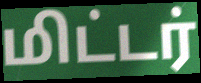
மிட்டர்